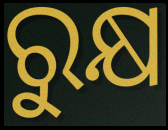
ରୁକ୍ଷ